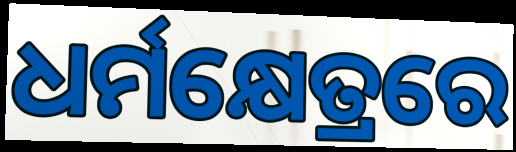
ଧର୍ମକ୍ଷେତ୍ରରେ